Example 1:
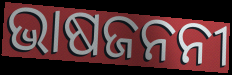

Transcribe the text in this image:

ଭାଷଜନନୀ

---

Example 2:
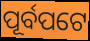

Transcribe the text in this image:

ପୂର୍ବପଟେ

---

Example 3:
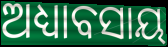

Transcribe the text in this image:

ଅଧ୍ୟାବସାୟ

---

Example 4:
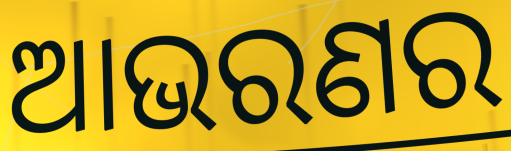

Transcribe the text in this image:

ଆଭରଣର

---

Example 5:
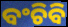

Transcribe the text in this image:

ବଂଚିବି